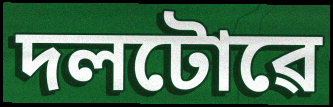
দলটোৱে